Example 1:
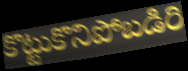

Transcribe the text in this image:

కొట్టుకొనిపోబడిరి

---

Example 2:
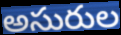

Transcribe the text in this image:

అసురుల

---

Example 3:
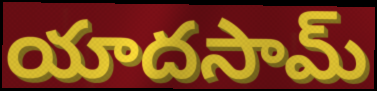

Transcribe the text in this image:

యాదసామ్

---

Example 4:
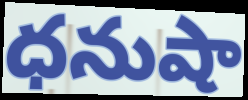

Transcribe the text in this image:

ధనుషా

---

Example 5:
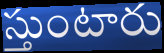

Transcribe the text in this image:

స్తుంటారు